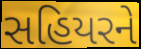
સહિયરને